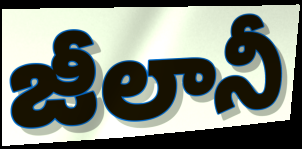
జీలానీ